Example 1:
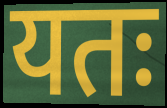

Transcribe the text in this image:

यतः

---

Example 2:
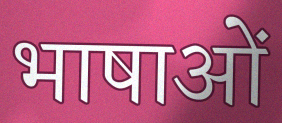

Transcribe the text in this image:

भाषाओें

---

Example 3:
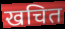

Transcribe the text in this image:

खचित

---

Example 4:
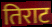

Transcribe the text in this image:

तिराट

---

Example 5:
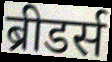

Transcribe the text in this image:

ब्रीडर्स